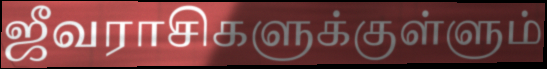
ஜீவராசிகளுக்குள்ளும்